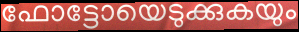
ഫോട്ടോയെടുക്കുകയും